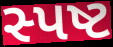
સ્પષ્ટ